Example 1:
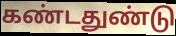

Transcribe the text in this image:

கண்டதுண்டு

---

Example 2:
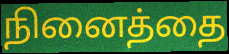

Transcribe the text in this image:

நினைத்தை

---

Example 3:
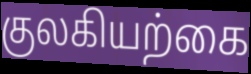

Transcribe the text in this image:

குலகியற்கை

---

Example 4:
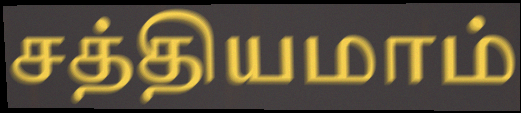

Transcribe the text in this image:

சத்தியமாம்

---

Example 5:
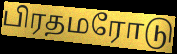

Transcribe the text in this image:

பிரதமரோடு